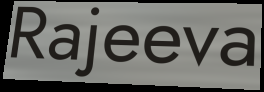
Rajeeva